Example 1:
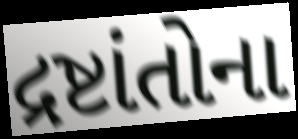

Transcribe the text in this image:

દ્રષ્ટાંતોના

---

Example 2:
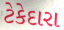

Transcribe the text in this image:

ટેકેદારા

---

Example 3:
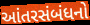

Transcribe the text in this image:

આંતરસંબંધનો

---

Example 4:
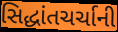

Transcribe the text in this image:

સિદ્ધાંતચર્ચાની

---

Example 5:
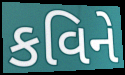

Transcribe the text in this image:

કવિને